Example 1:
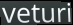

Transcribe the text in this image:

veturi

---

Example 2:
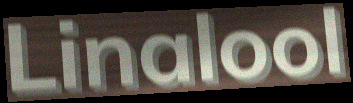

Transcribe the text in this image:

Linalool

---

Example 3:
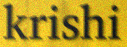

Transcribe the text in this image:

krishi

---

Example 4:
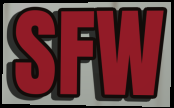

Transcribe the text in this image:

SFW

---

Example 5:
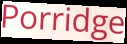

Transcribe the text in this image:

Porridge